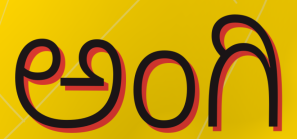
ಅಂಗಿ